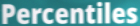
Percentiles